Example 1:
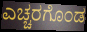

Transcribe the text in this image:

ಎಚ್ಚರಗೊಂಡ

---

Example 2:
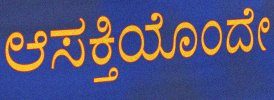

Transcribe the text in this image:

ಆಸಕ್ತಿಯೊಂದೇ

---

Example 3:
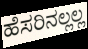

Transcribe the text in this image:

ಹೆಸರಿನಲ್ಲಲ್ಲ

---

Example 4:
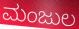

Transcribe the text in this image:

ಮಂಜುಲ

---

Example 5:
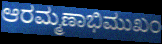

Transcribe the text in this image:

ಆರಮ್ಮಣಾಭಿಮುಖಂ